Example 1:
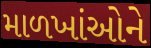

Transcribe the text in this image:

માળખાંઓને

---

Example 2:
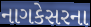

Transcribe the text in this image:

નાગકેસરના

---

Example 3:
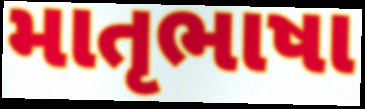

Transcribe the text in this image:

માતૃભાષા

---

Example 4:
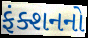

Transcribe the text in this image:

ફંક્શનનો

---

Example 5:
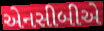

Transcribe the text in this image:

એનસીબીએ